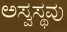
ಅಸ್ವಸ್ಥವು